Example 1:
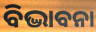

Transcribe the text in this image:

ବିଦ୍ଭାବନା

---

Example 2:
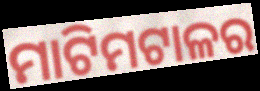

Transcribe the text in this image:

ମାଟିମଟାଳର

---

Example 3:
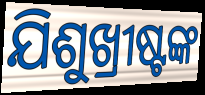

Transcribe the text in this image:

ଯିଶୁଖ୍ରୀଷ୍ଟଙ୍କ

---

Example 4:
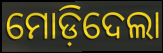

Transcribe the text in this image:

ମୋଡ଼ିଦେଲା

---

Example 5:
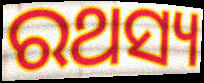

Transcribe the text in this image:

ରଥସ୍ୟ